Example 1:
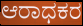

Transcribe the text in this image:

ಆರಾಧಕರ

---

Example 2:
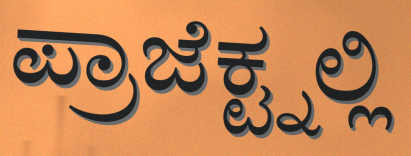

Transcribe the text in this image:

ಪ್ರಾಜೆಕ್ಟ್ನಲ್ಲಿ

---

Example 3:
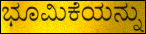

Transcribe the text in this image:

ಭೂಮಿಕೆಯನ್ನು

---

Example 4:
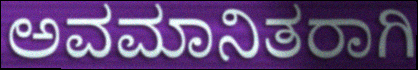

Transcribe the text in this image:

ಅವಮಾನಿತರಾಗಿ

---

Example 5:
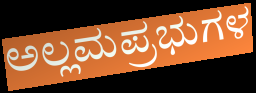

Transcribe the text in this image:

ಅಲ್ಲಮಪ್ರಭುಗಳ